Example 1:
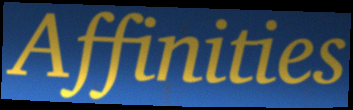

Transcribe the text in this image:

Affinities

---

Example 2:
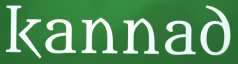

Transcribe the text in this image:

kannad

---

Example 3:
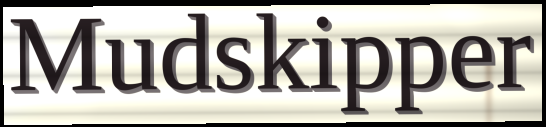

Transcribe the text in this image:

Mudskipper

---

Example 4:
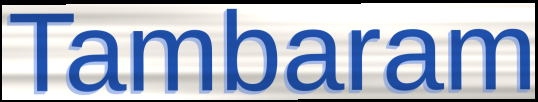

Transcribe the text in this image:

Tambaram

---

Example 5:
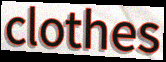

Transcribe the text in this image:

clothes